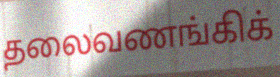
தலைவணங்கிக்